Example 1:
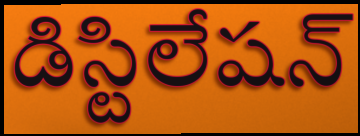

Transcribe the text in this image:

డిస్టిలేషన్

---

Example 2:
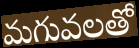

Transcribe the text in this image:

మగువలతో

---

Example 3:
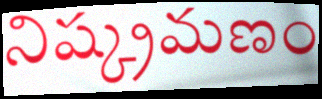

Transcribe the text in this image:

నిష్క్రమణం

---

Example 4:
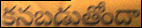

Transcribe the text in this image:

కనబడుతోందా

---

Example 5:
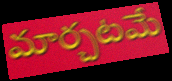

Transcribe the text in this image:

మార్చటమే